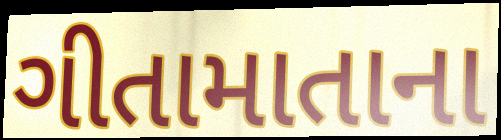
ગીતામાતાના